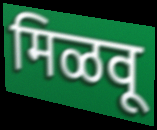
मिळवू